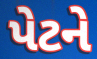
પેટને